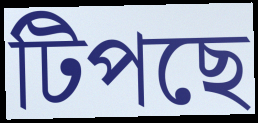
টিপছে